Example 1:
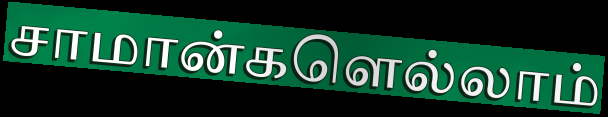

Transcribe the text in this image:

சாமான்களெல்லாம்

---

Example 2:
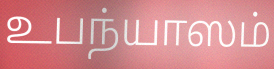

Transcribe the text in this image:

உபந்யாஸம்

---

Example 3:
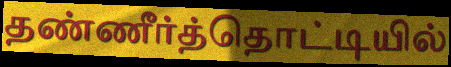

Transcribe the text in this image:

தண்ணீர்த்தொட்டியில்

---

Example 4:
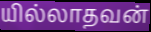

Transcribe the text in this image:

யில்லாதவன்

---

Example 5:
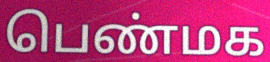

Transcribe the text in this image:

பெண்மக